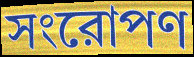
সংরোপণ